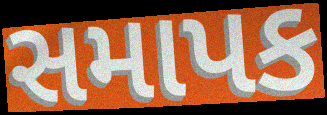
સમાપક